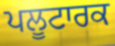
ਪਲੂਟਾਰਕ